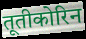
तूतीकोरिन